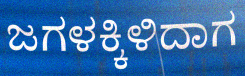
ಜಗಳಕ್ಕಿಳಿದಾಗ